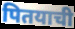
पितयाची